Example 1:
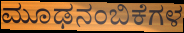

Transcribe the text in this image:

ಮೂಢನಂಬಿಕೆಗಳ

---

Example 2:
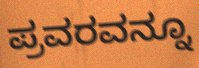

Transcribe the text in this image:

ಪ್ರವರವನ್ನೂ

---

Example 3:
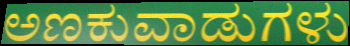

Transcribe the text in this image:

ಅಣಕುವಾಡುಗಳು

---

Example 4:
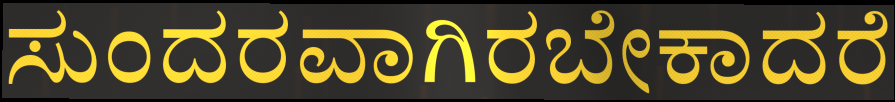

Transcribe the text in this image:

ಸುಂದರವಾಗಿರಬೇಕಾದರೆ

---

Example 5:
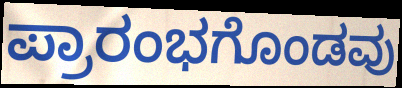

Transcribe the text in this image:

ಪ್ರಾರಂಭಗೊಂಡವು